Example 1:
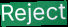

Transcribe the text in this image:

Reject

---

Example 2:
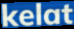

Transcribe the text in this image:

kelat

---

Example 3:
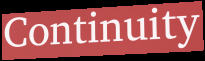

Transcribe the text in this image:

Continuity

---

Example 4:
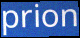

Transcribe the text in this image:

prion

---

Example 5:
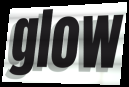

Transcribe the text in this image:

glow